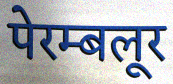
पेरम्बलूर